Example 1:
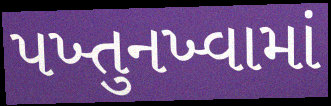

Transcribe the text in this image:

પખ્તુનખ્વામાં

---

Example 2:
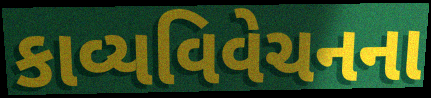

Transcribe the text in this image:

કાવ્યવિવેચનના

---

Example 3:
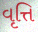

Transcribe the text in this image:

વૃત્તિ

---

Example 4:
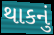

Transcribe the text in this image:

થાકનું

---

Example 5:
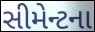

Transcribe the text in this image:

સીમેન્ટના